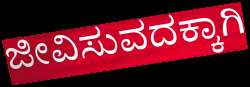
ಜೀವಿಸುವದಕ್ಕಾಗಿ